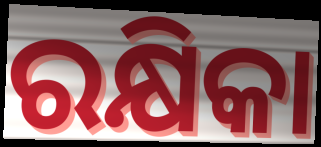
ରକ୍ଷିକା